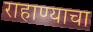
राहाण्याचा